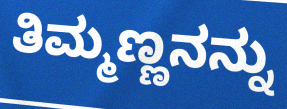
ತಿಮ್ಮಣ್ಣನನ್ನು